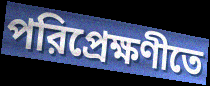
পরিপ্রেক্ষণীতে